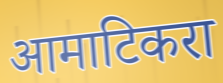
आमाटिकरा